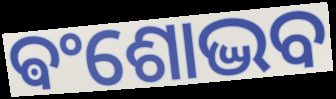
ଵଂଶୋଦ୍ଭବ